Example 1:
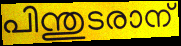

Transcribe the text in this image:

പിന്തുടരാന്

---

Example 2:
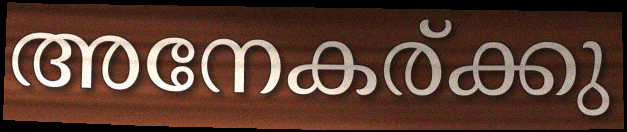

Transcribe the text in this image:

അനേകര്ക്കു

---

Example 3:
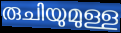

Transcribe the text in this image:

രുചിയുമുള്ള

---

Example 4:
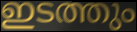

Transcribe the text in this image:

ഇടത്തും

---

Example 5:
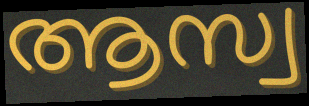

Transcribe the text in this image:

ആസ്വ